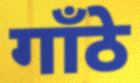
गाँठे